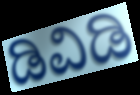
ಡಿವಿಡಿ